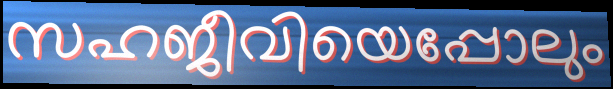
സഹജീവിയെപ്പോലും